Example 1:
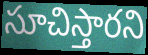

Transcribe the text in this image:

సూచిస్తారని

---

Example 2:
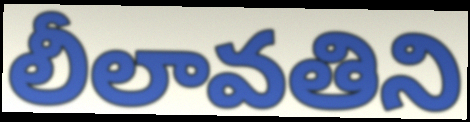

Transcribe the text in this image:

లీలావతిని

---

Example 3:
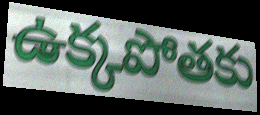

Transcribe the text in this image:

ఉక్కపోతకు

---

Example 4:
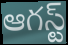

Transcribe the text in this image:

ఆగస్ట్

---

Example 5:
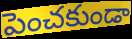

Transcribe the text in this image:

పెంచకుండా